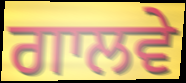
ਗਾਲਵੇ